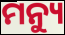
ମନ୍ୟୁ